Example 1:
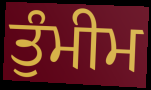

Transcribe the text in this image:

ਤੁੰਮੀਮ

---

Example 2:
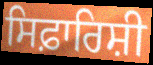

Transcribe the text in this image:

ਸਿਫ਼ਾਰਿਸ਼ੀ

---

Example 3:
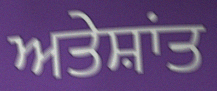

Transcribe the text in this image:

ਅਤੇਸ਼ਾਂਤ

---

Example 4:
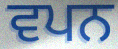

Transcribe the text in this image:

ਵਪਨ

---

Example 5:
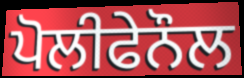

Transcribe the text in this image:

ਪੋਲੀਫੇਨੌਲ